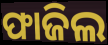
ଫାଜିଲ